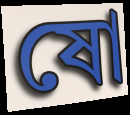
ষো